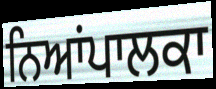
ਨਿਆਂਪਾਲਕਾ